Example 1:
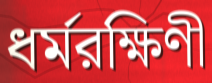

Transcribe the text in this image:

ধর্মরক্ষিণী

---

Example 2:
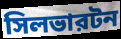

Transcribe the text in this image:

সিলভারটন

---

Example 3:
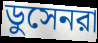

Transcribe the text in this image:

ডুসেনরা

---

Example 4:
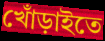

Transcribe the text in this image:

খোঁড়াইতে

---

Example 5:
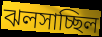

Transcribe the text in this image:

ঝলসাচ্ছিল